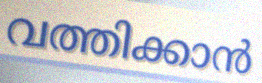
വത്തിക്കാൻ